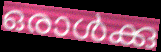
ഒരാൾക്കു